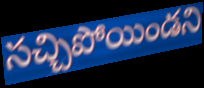
సచ్చిపోయిండని